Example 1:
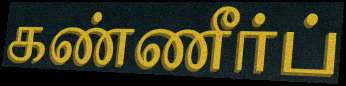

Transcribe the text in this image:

கண்ணீர்ப்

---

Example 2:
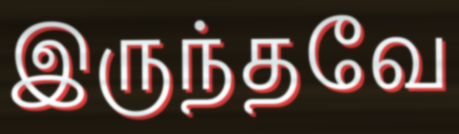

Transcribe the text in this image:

இருந்தவே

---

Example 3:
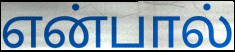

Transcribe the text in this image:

என்பால்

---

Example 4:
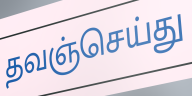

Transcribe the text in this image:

தவஞ்செய்து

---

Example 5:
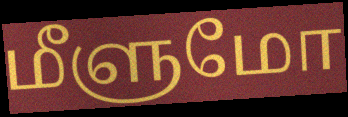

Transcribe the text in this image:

மீளுமோ